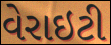
વેરાઇટી